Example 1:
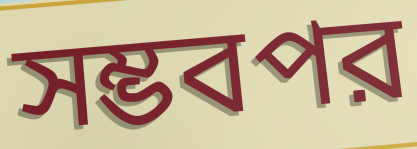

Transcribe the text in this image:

সম্ভবপর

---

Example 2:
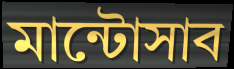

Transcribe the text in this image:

মান্টোসাব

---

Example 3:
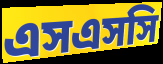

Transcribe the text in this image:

এসএসসি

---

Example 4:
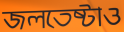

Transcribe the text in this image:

জলতেষ্টাও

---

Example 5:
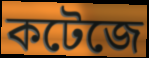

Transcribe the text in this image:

কটেজে